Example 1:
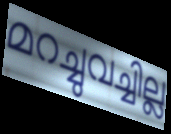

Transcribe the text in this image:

മറച്ചുവച്ചില്ല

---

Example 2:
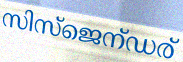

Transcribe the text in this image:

സിസ്ജെന്ഡര്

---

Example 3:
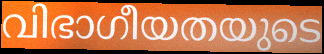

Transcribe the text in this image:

വിഭാഗീയതയുടെ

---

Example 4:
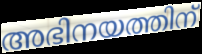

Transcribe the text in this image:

അഭിനയത്തിന്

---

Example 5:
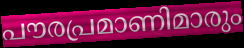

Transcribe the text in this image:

പൗരപ്രമാണിമാരും